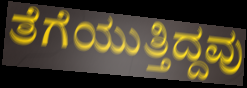
ತೆಗೆಯುತ್ತಿದ್ದವು